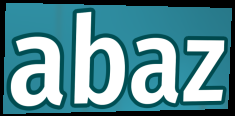
abaz